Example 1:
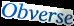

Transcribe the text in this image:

Obverse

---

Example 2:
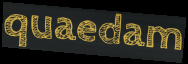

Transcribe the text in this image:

quaedam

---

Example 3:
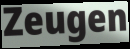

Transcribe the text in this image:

Zeugen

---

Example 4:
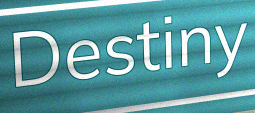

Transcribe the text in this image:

Destiny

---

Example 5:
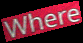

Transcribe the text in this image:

Where